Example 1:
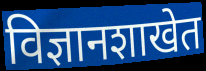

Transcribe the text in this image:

विज्ञानशाखेत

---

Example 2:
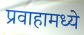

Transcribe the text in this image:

प्रवाहामध्ये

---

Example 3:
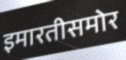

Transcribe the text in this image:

इमारतीसमोर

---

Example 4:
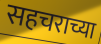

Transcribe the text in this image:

सहचराच्या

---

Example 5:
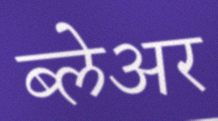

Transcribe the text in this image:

ब्लेअर